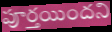
పూర్తయిందని